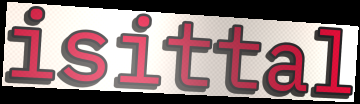
isittal